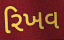
રિખવ